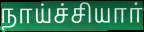
நாய்ச்சியார்